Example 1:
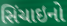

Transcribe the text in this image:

સિંચાઇનો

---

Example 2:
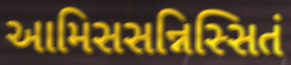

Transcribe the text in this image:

આમિસસન્નિસ્સિતં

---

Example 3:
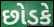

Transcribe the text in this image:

છોડકે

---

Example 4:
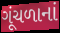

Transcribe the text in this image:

ગૂંચળાનાં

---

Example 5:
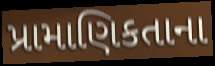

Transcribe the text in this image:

પ્રામાણિકતાના